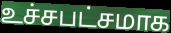
உச்சபட்சமாக